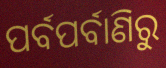
ପର୍ବପର୍ବାଣିରୁ